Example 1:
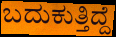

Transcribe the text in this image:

ಬದುಕುತ್ತಿದ್ದೆ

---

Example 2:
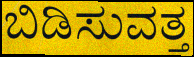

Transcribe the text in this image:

ಬಿಡಿಸುವತ್ತ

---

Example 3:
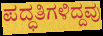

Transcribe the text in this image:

ಪದ್ಧತಿಗಳಿದ್ದವು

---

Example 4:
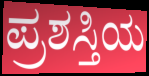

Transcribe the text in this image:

ಪ್ರಶಸ್ತಿಯ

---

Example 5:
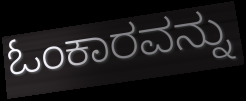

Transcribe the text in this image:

ಓಂಕಾರವನ್ನು